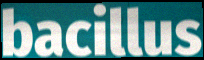
bacillus